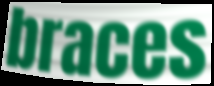
braces